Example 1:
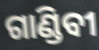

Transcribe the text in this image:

ଗାଣ୍ଡିବୀ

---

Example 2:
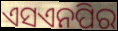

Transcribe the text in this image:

ଏସଏନପିର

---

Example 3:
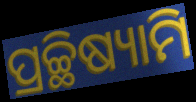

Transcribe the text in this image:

ପ୍ରଚ୍ଛିଷ୍ୟାମି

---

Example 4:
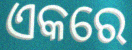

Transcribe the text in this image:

ଏକରେ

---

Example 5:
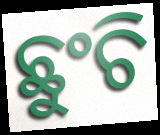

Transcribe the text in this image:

ଛୁଂଚି